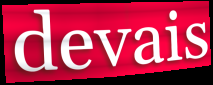
devais